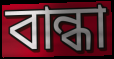
বান্ধা